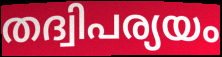
തദ്വിപര്യയം